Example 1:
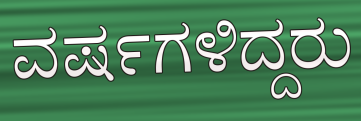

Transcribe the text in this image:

ವರ್ಷಗಳಿದ್ದರು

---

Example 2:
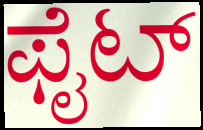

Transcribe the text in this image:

ಫೈಟ್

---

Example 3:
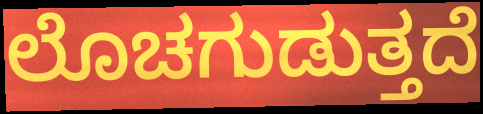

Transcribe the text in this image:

ಲೊಚಗುಡುತ್ತದೆ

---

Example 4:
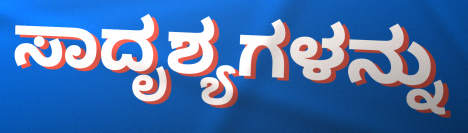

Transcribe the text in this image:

ಸಾದೃಶ್ಯಗಳನ್ನು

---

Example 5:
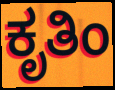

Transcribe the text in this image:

ಕೃತಿಂ